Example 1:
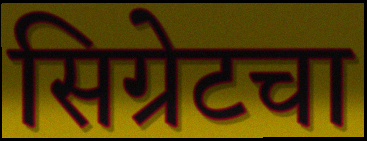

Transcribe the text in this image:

सिग्रेटचा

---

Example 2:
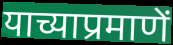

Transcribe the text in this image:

याच्याप्रमाणें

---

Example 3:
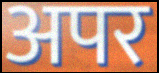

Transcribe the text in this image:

अपर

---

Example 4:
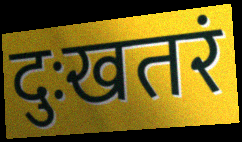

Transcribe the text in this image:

दुःखतरं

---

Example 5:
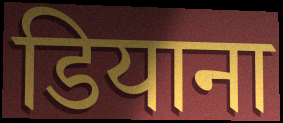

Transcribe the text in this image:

डियाना